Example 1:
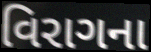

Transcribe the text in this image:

વિરાગના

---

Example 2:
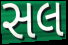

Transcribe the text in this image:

સલ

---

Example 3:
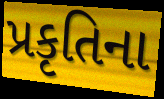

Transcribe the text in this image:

પ્રકૃતિના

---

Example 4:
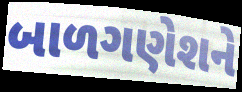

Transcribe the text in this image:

બાળગણેશને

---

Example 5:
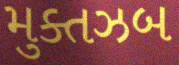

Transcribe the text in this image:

મુક્તઝબ